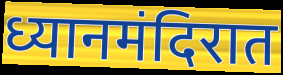
ध्यानमंदिरात